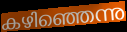
കഴിഞ്ഞെന്നു